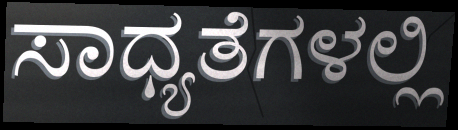
ಸಾಧ್ಯತೆಗಳಲ್ಲಿ